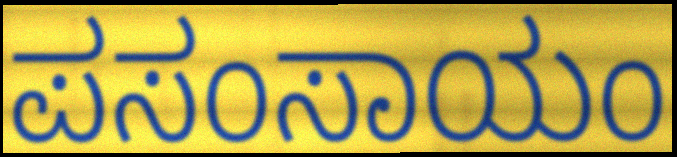
ಪಸಂಸಾಯಂ